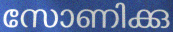
സോണിക്കു